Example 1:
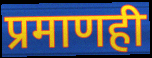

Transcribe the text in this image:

प्रमाणही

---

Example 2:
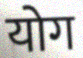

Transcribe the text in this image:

योग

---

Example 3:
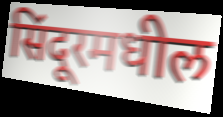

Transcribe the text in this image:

सिंदूरमधील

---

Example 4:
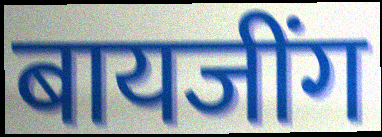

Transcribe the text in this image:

बायजींग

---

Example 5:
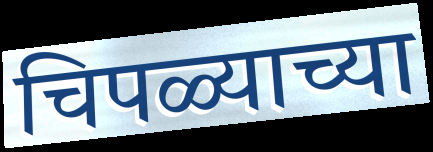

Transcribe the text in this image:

चिपळ्याच्या